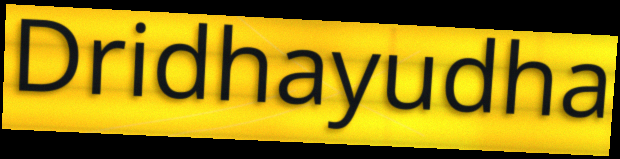
Dridhayudha